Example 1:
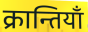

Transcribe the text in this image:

क्रान्तियाँ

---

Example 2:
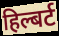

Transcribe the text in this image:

हिल्बर्ट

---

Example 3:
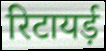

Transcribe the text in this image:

रिटायर्ड़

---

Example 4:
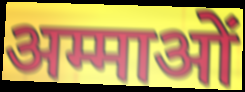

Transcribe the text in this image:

अम्माओं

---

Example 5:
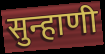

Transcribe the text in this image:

सुन्हाणी